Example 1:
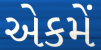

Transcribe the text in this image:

એકમેં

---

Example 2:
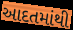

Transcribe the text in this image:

આદતમાંથી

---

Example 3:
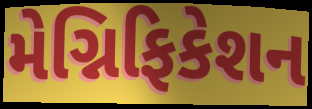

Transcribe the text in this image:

મેગ્નિફિકેશન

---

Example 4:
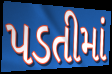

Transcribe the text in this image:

પડતીમાં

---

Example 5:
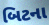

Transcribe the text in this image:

બિટના